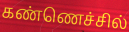
கண்ணெச்சில்